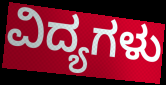
ವಿದ್ಯಗಳು